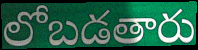
లోబడతారు